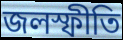
জলস্ফীতি